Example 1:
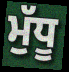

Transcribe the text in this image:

ਮੁੱਧੂ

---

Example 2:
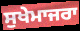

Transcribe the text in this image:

ਸੁਖੇਮਾਜਰਾ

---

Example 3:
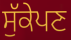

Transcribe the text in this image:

ਸੁੱਕੇਪਣ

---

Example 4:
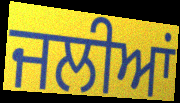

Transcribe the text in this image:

ਜਲੀਆਂ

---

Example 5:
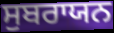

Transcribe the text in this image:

ਸੁਬਰਾਯਨ